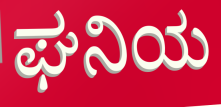
ಘನಿಯ